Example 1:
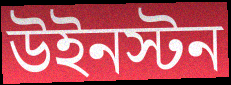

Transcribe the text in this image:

উইনস্টন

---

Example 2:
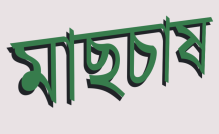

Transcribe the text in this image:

মাছচাষ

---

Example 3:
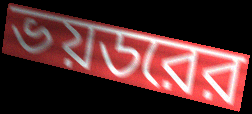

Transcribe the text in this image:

ভয়ডরের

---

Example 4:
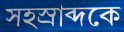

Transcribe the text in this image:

সহস্রাব্দকে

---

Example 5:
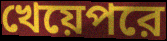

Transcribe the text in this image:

খেয়েপরে